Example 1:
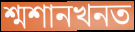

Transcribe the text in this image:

শ্মশানখনত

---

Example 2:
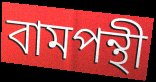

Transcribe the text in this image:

বামপন্থী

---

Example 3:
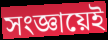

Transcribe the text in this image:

সংজ্ঞায়েই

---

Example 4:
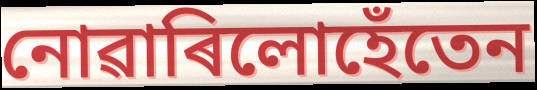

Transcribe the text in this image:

নোৱাৰিলোহেঁতেন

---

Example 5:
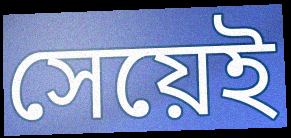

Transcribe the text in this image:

সেয়েই